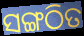
ସଙ୍ଗଠିତ